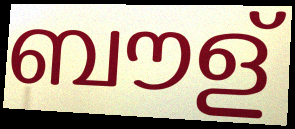
ബൗള്